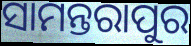
ସାମନ୍ତରାପୁର